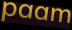
paam